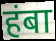
हंबा